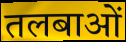
तलबाओं